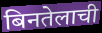
बिनतेलाची